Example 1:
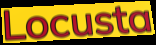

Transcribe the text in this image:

Locusta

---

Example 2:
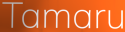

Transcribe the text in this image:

Tamaru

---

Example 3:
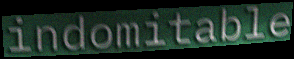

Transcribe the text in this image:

indomitable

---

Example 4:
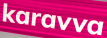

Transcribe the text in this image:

karavva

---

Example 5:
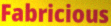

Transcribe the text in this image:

Fabricious